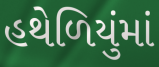
હથેળિયુંમાં